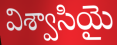
విశ్వాసియై